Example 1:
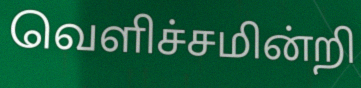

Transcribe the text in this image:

வெளிச்சமின்றி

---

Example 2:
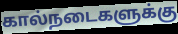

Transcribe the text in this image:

கால்நடைகளுக்கு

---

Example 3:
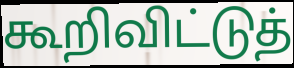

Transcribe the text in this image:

கூறிவிட்டுத்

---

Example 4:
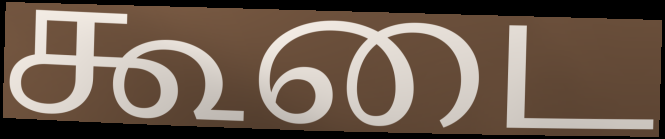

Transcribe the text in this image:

கூடை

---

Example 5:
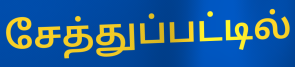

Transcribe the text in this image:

சேத்துப்பட்டில்